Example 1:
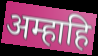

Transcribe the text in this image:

अम्हाहि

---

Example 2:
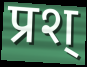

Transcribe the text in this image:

प्रश्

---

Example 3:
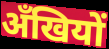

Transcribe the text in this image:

अँखियों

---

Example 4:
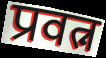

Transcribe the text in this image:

प्रवत्न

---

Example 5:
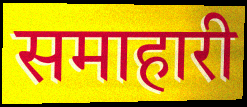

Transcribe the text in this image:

समाहारी